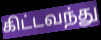
கிட்டவந்து